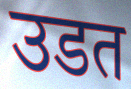
उडत